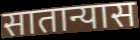
सातान्यास